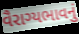
વૈરાગ્યભાવનું